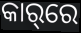
କାର୍‌ରେ